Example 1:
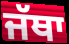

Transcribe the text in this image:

ਜੱਥਾ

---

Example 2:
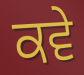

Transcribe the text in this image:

ਕਵੇ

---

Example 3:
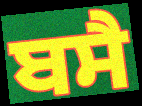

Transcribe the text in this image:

ਬਸੈ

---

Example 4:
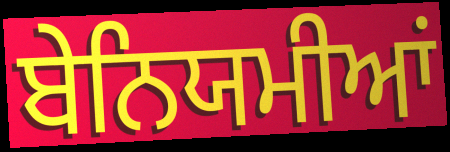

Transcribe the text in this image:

ਬੇਨਿਯਮੀਆਂ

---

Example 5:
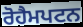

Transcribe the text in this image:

ਰੋਹੈਮਪਟਨ